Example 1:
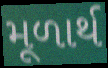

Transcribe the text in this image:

મૂળાર્થ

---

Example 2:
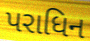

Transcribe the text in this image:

પરાધિન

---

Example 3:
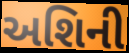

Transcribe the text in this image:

અશિની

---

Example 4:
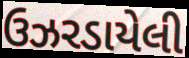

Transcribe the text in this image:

ઉઝરડાયેલી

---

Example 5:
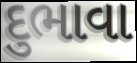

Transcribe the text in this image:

દુભાવા